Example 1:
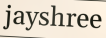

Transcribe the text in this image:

jayshree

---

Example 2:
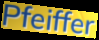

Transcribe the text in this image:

Pfeiffer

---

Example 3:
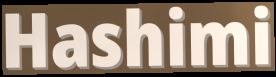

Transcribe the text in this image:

Hashimi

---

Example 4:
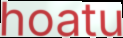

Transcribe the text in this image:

hoatu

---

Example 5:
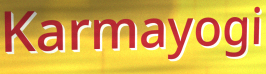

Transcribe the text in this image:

Karmayogi